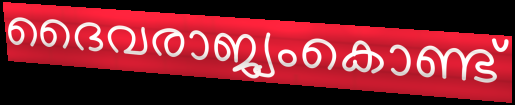
ദൈവരാജ്യംകൊണ്ട്